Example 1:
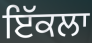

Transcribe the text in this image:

ਇੱਕਲਾ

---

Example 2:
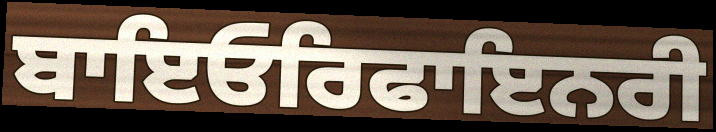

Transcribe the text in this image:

ਬਾਇਓਰਿਫਾਇਨਰੀ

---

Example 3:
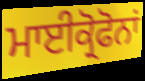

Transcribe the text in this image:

ਮਾਈਕ੍ਰੋਫੋਨਾਂ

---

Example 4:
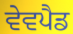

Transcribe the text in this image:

ਵੇਵਪੈਡ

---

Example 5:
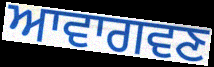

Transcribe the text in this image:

ਆਵਾਗਵਣ